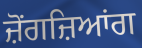
ਜ਼ੋਂਗਜ਼ਿਆਂਗ